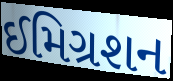
ઈમિગ્રશન